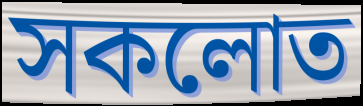
সকলোত